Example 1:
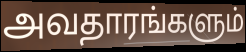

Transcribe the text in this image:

அவதாரங்களும்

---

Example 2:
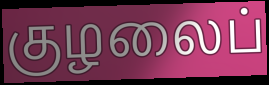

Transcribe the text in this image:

குழலைப்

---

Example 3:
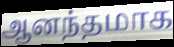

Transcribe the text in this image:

ஆனந்தமாக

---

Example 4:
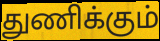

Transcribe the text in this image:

துணிக்கும்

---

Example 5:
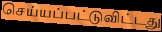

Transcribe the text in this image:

செய்யப்பட்டுவிட்டது